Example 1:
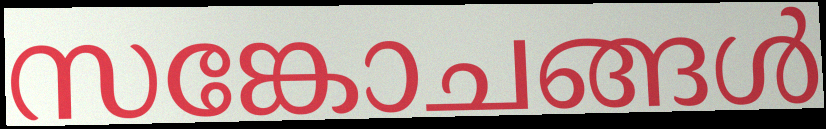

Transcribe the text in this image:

സങ്കോചങ്ങൾ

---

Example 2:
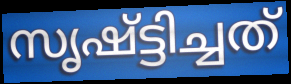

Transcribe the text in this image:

സൃഷ്ട്ടിച്ചത്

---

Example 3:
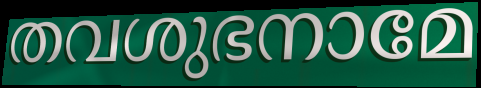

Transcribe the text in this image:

തവശുഭനാമേ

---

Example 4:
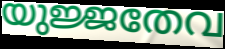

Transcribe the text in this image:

യുജ്ജതേവ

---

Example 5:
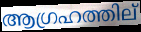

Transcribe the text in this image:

ആഗ്രഹത്തില്